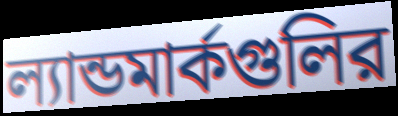
ল্যান্ডমার্কগুলির